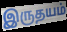
இருதயம்